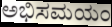
ಅಭಿಸಮಯಂ